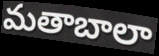
మతాబాలా